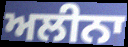
ਅਲੀਨਾ